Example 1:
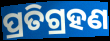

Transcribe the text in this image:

ପ୍ରତିଗ୍ରହଣ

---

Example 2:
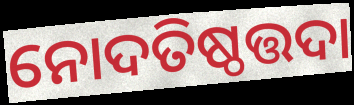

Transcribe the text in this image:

ନୋଦତିଷ୍ଠତ୍ତଦା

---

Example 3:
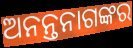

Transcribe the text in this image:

ଅନନ୍ତନାଗଙ୍କର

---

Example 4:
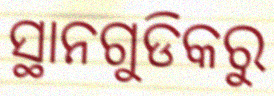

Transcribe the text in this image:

ସ୍ଥାନଗୁଡିକରୁ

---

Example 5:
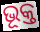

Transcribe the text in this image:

ଭୂକ୍ତ